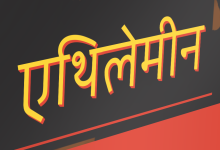
एथिलेमीन